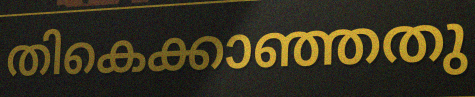
തികെക്കാഞ്ഞതു